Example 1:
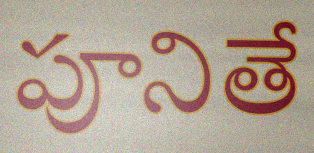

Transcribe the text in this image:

పూనితే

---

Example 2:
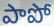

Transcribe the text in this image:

పాపో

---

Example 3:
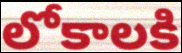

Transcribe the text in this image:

లోకాలకి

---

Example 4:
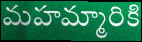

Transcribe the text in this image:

మహమ్మారికి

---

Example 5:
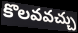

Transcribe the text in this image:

కొలవవచ్చు